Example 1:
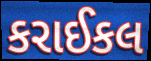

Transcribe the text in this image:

કરાઈકલ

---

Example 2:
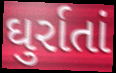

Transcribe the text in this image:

ઘુર્રાતાં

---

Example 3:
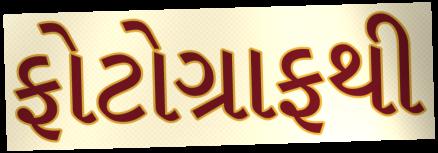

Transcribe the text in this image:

ફોટોગ્રાફથી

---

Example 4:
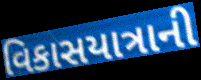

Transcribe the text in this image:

વિકાસયાત્રાની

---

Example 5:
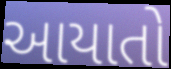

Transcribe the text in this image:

આયાતો